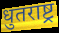
धुतराष्ट्र